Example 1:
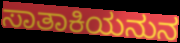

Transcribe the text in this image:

ಸಾತಾಕಿಯನುನ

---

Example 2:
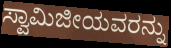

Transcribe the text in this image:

ಸ್ವಾಮಿಜೀಯವರನ್ನು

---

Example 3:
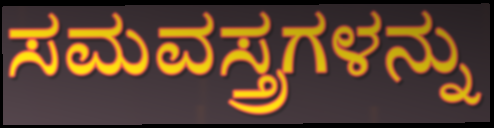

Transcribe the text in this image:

ಸಮವಸ್ತ್ರಗಳನ್ನು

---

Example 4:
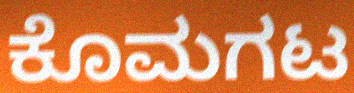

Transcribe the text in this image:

ಕೊಮಗಟ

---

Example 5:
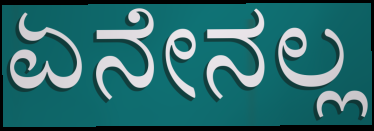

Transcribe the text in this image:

ಏನೇನಲ್ಲ